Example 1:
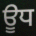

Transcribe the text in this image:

ਊਧ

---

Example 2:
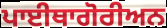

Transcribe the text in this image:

ਪਾਈਥਾਗੋਰੀਅਨ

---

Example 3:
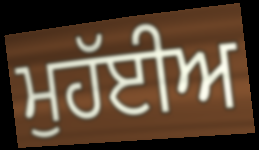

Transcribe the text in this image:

ਮੁਹੱਈਅ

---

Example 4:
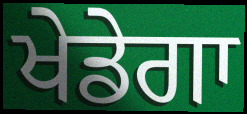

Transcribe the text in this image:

ਖੇਡੇਗਾ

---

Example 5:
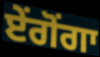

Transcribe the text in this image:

ਏਂਗੋਂਗਾ